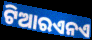
ଟିଆରଏନଏ